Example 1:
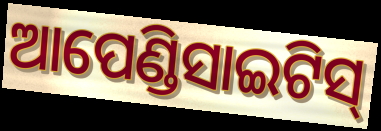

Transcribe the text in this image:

ଆପେଣ୍ଡିସାଇଟିସ୍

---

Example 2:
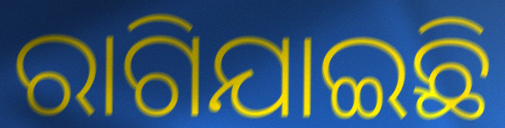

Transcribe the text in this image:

ରାଗିଯାଇଛି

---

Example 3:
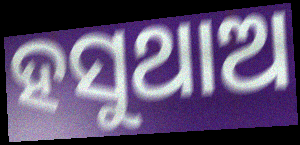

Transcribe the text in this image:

ହସୁଥାଅ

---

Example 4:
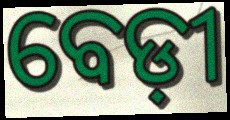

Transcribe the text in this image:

ବେଡ଼ୀ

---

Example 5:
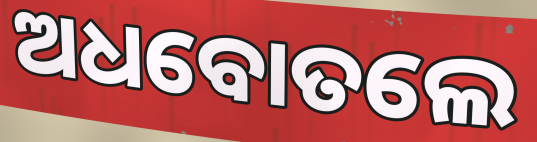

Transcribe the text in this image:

ଅଧବୋତଲେ